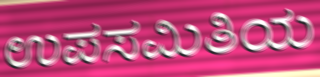
ಉಪಸಮಿತಿಯ